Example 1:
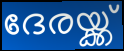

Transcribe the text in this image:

ദേരയ്ക്ക്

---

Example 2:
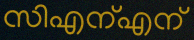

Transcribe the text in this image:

സിഎന്എന്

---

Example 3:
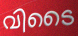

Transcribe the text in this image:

വിടൈ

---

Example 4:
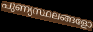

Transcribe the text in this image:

പുണ്യസ്ഥലങ്ങളോ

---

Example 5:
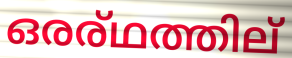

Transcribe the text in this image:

ഒരര്ഥത്തില്